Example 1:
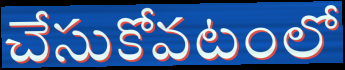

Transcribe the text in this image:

చేసుకోవటంలో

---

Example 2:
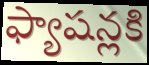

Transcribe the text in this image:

ఫ్యాషన్లకి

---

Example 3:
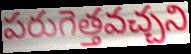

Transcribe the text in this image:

పరుగెత్తవచ్చని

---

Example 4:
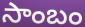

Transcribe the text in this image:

సాంబం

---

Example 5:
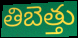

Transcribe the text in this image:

తిబెత్తు